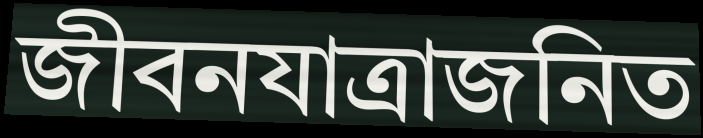
জীবনযাত্রাজনিত